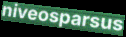
niveosparsus